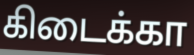
கிடைக்கா